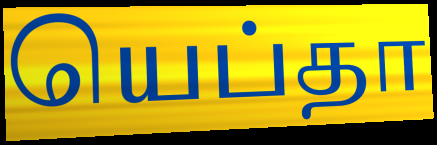
யெப்தா